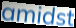
amidst